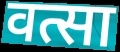
वत्सा